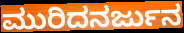
ಮುರಿದನರ್ಜುನ